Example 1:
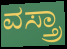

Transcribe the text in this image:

ವಸ್ತ್ರಾ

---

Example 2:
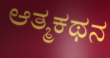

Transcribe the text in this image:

ಆತ್ಮಕಥನ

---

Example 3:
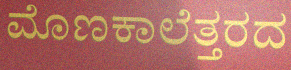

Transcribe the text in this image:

ಮೊಣಕಾಲೆತ್ತರದ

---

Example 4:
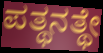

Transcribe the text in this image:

ಪತ್ಥನತ್ಥೇ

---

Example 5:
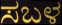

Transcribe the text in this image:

ಸಬಳ